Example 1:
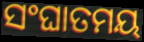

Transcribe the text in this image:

ସଂଘାତମୟ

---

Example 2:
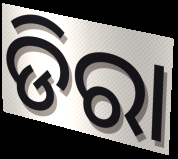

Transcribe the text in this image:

ଡିରା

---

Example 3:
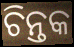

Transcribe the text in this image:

ଚିନ୍ତକ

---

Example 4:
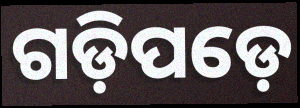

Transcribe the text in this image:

ଗଡ଼ିପଡ଼େ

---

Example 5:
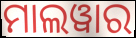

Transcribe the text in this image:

ମାଲୱାର